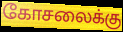
கோசலைக்கு